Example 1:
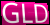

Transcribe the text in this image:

GLD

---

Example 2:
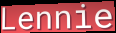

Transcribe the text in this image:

Lennie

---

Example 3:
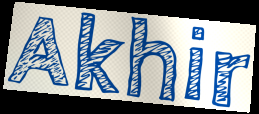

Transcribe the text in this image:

Akhir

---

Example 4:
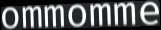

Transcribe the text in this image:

ommomme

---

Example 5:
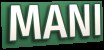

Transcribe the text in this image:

MANI